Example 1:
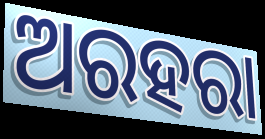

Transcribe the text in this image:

ଅରହରା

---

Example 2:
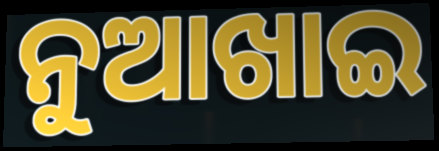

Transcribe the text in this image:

ନୁଆଖାଇ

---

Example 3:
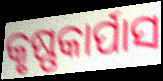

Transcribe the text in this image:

କୃଷ୍ଣକାର୍ପାସ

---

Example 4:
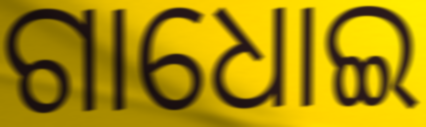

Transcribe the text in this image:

ଗାଧୋଇ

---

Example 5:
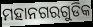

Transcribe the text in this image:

ମହାନଗରଗୁଡିକ